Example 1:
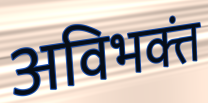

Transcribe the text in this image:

अविभक्तं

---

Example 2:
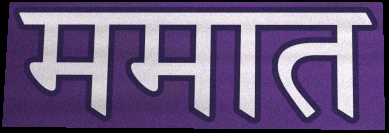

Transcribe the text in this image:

ममात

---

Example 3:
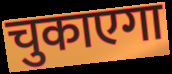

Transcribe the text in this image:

चुकाएगा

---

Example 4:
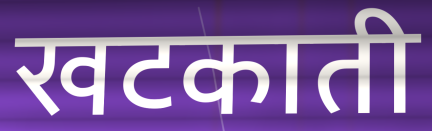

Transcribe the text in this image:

खटकाती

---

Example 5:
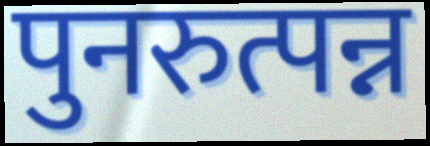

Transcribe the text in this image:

पुनरुत्पन्न